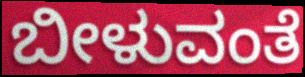
ಬೀಳುವಂತೆ